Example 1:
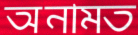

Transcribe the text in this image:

অনামত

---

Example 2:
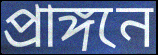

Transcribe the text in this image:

প্রাঙ্গনে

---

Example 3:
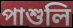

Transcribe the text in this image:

পাশুলি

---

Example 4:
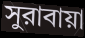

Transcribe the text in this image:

সুরাবায়া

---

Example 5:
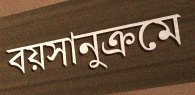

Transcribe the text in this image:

বয়সানুক্রমে